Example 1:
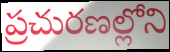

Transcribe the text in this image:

ప్రచురణల్లోని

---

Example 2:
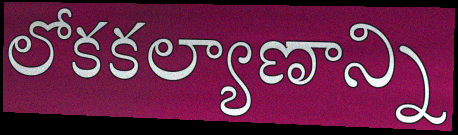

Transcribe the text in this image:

లోకకల్యాణాన్ని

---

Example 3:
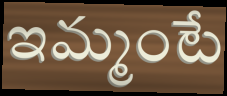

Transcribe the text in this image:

ఇమ్మంటే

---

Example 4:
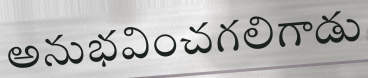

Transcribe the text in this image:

అనుభవించగలిగాడు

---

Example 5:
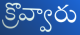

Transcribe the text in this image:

క్రొవ్వారు